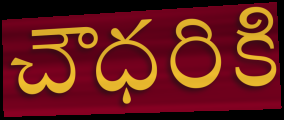
చౌధరికి